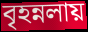
বৃহন্নলায়